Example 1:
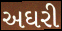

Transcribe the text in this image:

અઘરી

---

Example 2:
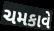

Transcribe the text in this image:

ચમકાવે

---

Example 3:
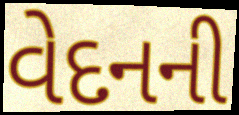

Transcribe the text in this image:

વેદનની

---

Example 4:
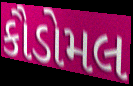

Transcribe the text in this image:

કૌડોમલ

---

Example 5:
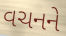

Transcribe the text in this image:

વચનને